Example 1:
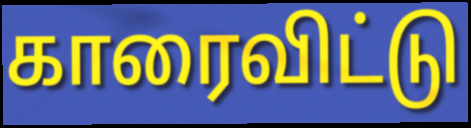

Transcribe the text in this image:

காரைவிட்டு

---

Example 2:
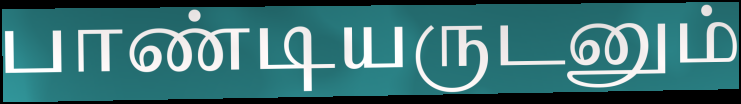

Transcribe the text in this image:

பாண்டியருடனும்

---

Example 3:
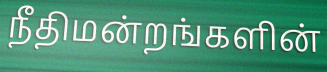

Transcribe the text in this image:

நீதிமன்றங்களின்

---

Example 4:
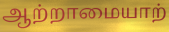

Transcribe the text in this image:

ஆற்றாமையாற்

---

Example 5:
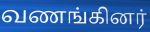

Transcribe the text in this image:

வணங்கினர்